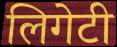
लिगेटी